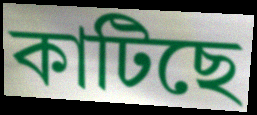
কাটিছে